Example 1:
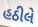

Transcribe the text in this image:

હઠીલે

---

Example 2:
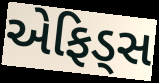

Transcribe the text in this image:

એફિડ્સ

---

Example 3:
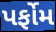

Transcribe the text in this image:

પર્ફોમ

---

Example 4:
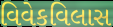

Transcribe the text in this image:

વિવેકવિલાસ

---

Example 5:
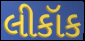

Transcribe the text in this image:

લીકૉક